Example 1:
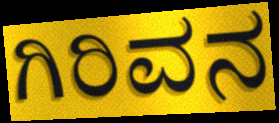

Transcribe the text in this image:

ಗಿರಿವನ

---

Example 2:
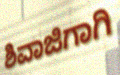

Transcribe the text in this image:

ಶಿವಾಜಿಗಾಗಿ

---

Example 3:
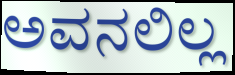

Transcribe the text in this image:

ಅವನಲಿಲ್ಲ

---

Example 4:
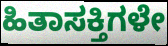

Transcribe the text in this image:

ಹಿತಾಸಕ್ತಿಗಳೇ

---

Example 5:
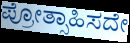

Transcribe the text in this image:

ಪ್ರೋತ್ಸಾಹಿಸದೇ